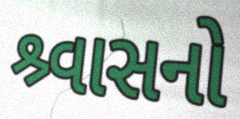
શ્ર્વાસનો